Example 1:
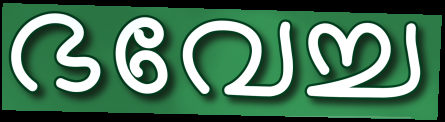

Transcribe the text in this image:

ഭവേച്ച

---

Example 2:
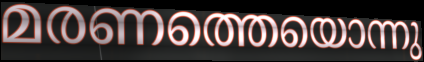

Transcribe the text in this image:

മരണത്തെയൊന്നു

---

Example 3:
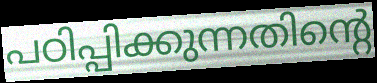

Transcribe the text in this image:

പഠിപ്പിക്കുന്നതിന്റെ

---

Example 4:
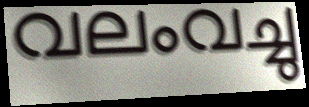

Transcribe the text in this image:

വലംവച്ചു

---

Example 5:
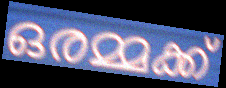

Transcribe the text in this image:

ഒരമ്മക്ക്